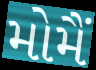
મોમૈં